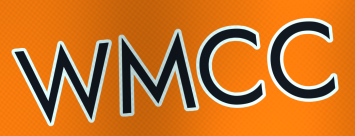
WMCC